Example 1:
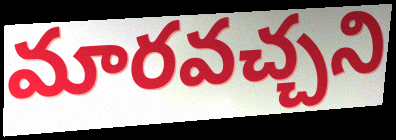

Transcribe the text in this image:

మారవచ్చని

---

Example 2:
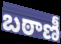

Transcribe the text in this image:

బఠాణీ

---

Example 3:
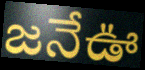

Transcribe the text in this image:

జనేఊ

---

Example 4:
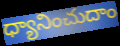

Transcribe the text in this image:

ధ్యానించుదాం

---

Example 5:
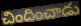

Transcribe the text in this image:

చిందించాడు